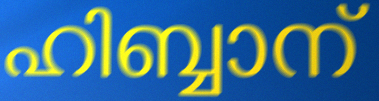
ഹിബ്ബാന്